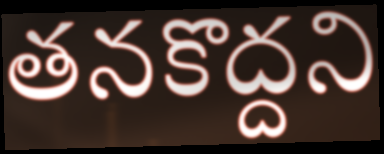
తనకొద్దని